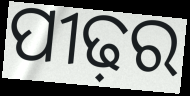
ପୀଢ଼ର